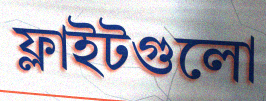
ফ্লাইটগুলো